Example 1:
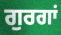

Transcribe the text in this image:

ਗੁਰਗਾਂ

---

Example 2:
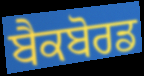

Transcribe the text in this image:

ਬੈਕਬੋਰਡ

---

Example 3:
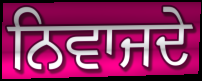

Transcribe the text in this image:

ਨਿਵਾਜਦੇ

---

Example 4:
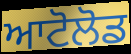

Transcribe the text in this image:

ਆਟੋਲੋਡ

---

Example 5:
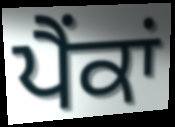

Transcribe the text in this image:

ਪੈਂਕਾਂ